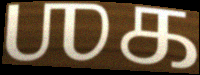
ஶக